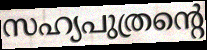
സഹ്യപുത്രന്റെ